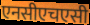
एनसीएचएसी